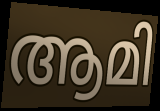
ആമി